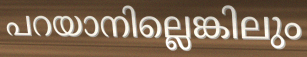
പറയാനില്ലെങ്കിലും